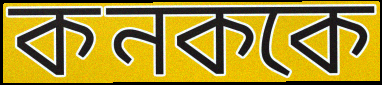
কনককে